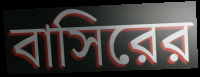
বাসিরের